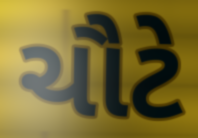
ચૌટે